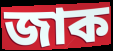
জাক